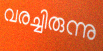
വരച്ചിരുന്നു